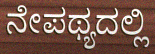
ನೇಪಥ್ಯದಲ್ಲಿ